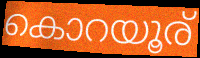
കൊറയൂര്